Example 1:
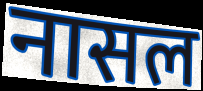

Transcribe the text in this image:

नासल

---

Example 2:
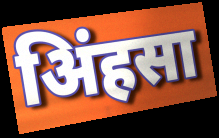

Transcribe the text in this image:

अिंहसा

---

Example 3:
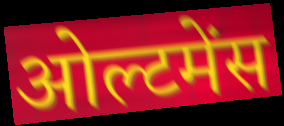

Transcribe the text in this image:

ओल्टमेंस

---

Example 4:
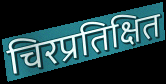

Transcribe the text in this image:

चिरप्रतिक्षित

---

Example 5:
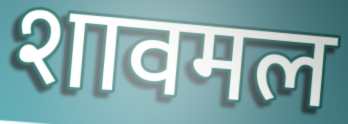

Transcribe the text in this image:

शावमल